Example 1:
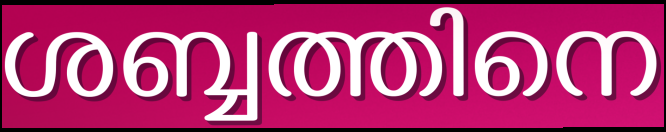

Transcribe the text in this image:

ശബ്ബത്തിനെ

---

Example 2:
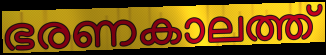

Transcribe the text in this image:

ഭരണകാലത്ത്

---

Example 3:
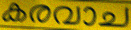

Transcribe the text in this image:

കരവാച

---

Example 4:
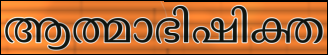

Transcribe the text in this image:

ആത്മാഭിഷിക്ത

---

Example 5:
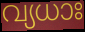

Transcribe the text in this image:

വ്യധാഃ